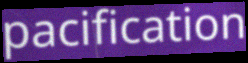
pacification